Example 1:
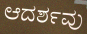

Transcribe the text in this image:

ಆದರ್ಶವು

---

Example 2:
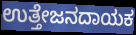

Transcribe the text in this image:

ಉತ್ತೇಜನದಾಯಕ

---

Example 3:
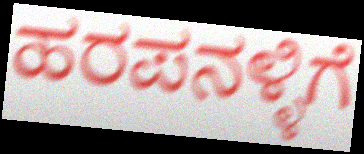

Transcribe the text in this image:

ಹರಪನಳ್ಳಿಗೆ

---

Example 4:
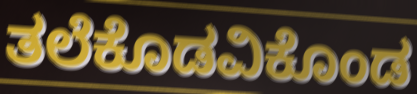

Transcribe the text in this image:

ತಲೆಕೊಡವಿಕೊಂಡ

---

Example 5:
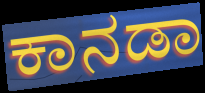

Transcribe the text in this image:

ಕಾನಡಾ